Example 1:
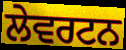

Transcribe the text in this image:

ਲੇਵਰਟਨ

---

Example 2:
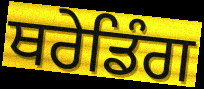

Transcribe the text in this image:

ਥਰੇਡਿੰਗ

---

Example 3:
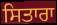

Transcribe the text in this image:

ਸਿਤਾਰਾ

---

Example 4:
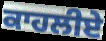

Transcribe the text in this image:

ਕਾਹਲੀਏ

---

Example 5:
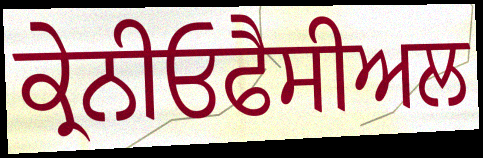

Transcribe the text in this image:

ਕ੍ਰੇਨੀਓਫੈਸੀਅਲ